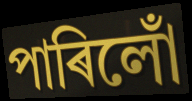
পাৰিলোঁ